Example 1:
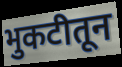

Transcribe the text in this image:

भुकटीतून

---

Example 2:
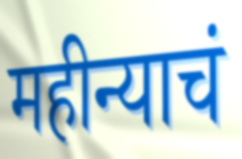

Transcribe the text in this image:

महीन्याचं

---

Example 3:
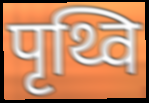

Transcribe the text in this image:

पृथ्वि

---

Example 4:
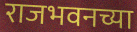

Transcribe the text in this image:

राजभवनच्या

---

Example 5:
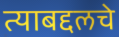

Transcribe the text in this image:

त्याबद्दलचे